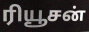
ரியூசன்